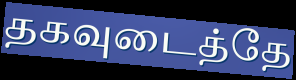
தகவுடைத்தே